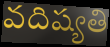
వదిష్యతి